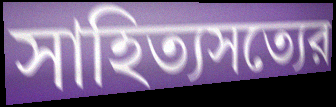
সাহিত্যসত্যের